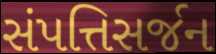
સંપત્તિસર્જન